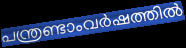
പന്ത്രണ്ടാംവർഷത്തിൽ